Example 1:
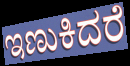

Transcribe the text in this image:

ಇಣುಕಿದರೆ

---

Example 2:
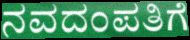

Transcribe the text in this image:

ನವದಂಪತಿಗೆ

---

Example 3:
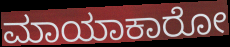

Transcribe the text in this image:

ಮಾಯಾಕಾರೋ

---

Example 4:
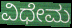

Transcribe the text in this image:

ವಿಧೇಮ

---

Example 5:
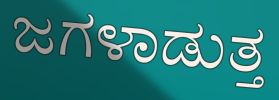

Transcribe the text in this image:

ಜಗಳಾಡುತ್ತ